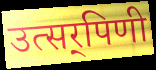
उत्सर्पिणी